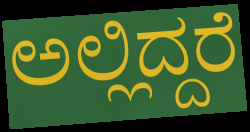
ಅಲ್ಲಿದ್ದರೆ